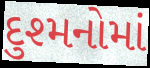
દુશ્મનોમાં